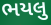
ભયલુ